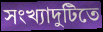
সংখ্যাদুটিতে